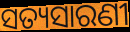
ସତ୍ୟସାରଣୀ